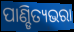
ପାଣ୍ଡିତ୍ୟଭରା